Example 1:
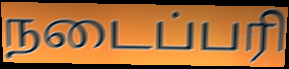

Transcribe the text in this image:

நடைப்பரி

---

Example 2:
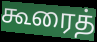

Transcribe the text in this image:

கூரைத்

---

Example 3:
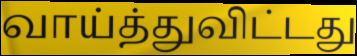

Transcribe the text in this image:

வாய்த்துவிட்டது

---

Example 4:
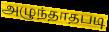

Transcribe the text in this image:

அழுந்தாதபடி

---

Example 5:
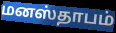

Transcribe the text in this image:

மனஸ்தாபம்